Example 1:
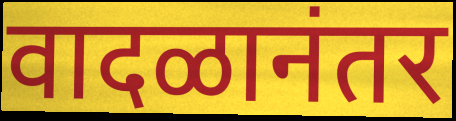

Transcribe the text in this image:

वादळानंतर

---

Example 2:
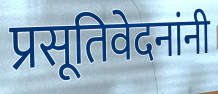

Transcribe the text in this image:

प्रसूतिवेदनांनी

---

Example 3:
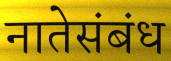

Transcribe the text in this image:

नातेसंबंध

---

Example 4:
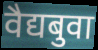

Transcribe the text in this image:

वैद्यबुवा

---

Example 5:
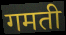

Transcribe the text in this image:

गमती